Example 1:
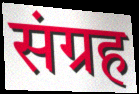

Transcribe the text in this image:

संग्रह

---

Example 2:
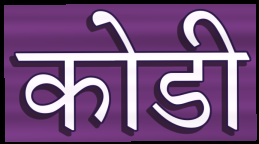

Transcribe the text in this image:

कोडी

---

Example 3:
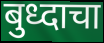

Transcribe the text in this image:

बुध्दाचा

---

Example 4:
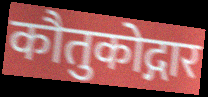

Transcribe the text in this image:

कौतुकोद्गार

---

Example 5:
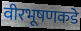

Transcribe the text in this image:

वीरभूषणकडे